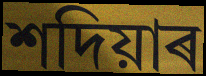
শদিয়াৰ